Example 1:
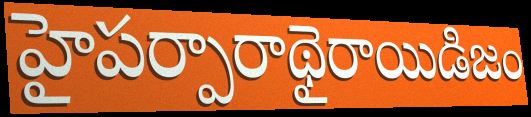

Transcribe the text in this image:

హైపర్పారాథైరాయిడిజం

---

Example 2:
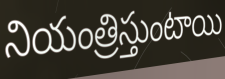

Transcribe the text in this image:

నియంత్రిస్తుంటాయి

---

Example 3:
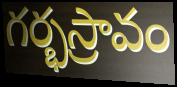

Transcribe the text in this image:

గర్భస్రావం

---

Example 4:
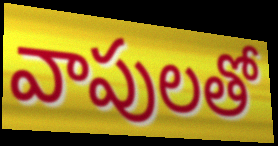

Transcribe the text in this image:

వాపులతో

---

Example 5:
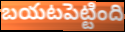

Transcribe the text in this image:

బయటపెట్టింది